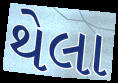
થેલા